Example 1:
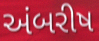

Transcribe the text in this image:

અંબરીષ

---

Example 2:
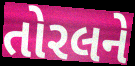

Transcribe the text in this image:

તોરલને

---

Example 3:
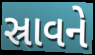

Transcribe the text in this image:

સ્રાવને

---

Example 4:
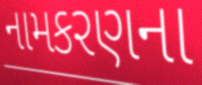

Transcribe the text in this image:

નામકરણના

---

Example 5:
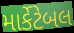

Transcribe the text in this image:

માર્કેટેબલ